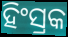
ହିଂସ୍ରକ